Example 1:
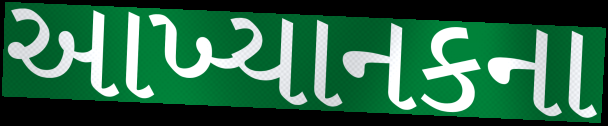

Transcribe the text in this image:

આખ્યાનકના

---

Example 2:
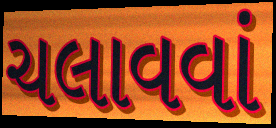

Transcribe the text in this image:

ચલાવવાં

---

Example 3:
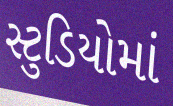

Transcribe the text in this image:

સ્ટુડિયોમાં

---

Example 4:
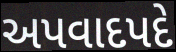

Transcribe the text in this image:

અપવાદપદે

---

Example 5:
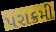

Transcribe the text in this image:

પરાક્રમી